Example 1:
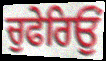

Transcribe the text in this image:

ਚੁਫੇਰਿਓੁਂ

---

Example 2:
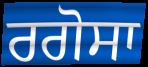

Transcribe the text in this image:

ਰਗੋਸਾ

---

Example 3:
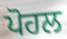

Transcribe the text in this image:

ਪੋਹਲ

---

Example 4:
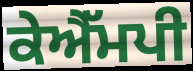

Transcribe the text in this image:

ਕੇਐੱਮਪੀ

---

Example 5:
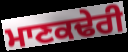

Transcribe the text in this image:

ਮਾਣਕਢੇਰੀ